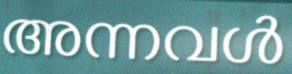
അന്നവൾ